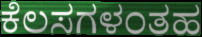
ಕೆಲಸಗಳಂತಹ